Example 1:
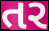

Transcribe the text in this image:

તર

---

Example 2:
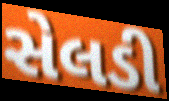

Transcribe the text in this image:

સેલડી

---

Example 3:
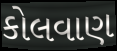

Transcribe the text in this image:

કોલવાણ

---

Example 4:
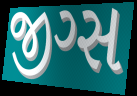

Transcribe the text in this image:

જીગ્સ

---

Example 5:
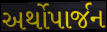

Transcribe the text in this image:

અર્થોપાર્જન